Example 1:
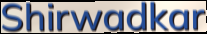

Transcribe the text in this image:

Shirwadkar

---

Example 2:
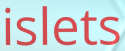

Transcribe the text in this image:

islets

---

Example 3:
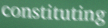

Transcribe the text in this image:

constituting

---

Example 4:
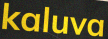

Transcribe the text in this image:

kaluva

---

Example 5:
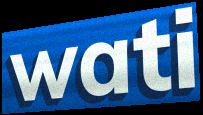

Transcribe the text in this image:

wati